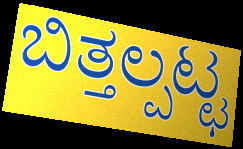
ಬಿತ್ತಲ್ಪಟ್ಟ